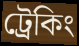
ট্রেকিং